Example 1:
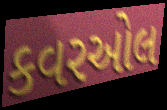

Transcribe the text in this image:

કવરઓલ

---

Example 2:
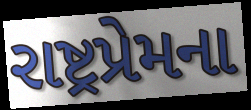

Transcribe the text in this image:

રાષ્ટ્રપ્રેમના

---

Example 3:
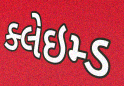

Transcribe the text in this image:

ક્લેઇમ્ડ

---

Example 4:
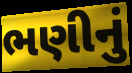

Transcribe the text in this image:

ભણીનું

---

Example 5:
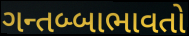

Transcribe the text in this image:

ગન્તબ્બાભાવતો